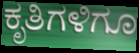
ಕೃತಿಗಳಿಗೂ